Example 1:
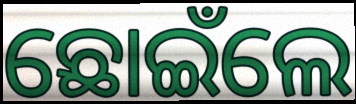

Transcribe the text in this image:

ଛୋଇଁଲେ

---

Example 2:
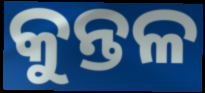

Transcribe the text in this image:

କୁନ୍ତଳ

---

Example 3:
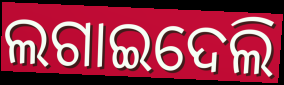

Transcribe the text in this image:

ଲଗାଇଦେଲି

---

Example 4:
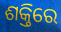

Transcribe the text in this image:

ଶକ୍ତିରେ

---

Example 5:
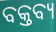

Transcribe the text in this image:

ବକ୍ତବ୍ଯ